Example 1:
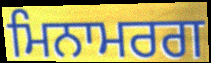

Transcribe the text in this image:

ਮਿਨਾਮਰਗ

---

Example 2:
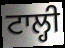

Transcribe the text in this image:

ਟਾਲ੍ਹੀ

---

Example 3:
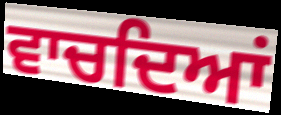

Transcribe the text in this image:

ਵਾਚਦਿਆਂ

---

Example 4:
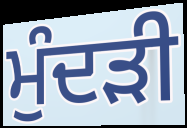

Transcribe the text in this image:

ਮੁੰਦੜੀ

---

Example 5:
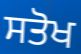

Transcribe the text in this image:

ਸਤੋਖ